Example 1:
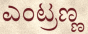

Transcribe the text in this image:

ಎಂಟ್ರಣ್ಣ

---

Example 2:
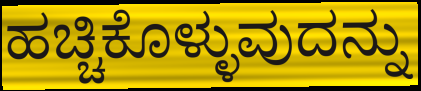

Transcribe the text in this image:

ಹಚ್ಚಿಕೊಳ್ಳುವುದನ್ನು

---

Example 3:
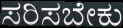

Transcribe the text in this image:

ಸರಿಸಬೇಕು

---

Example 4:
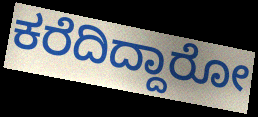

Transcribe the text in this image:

ಕರೆದಿದ್ದಾರೋ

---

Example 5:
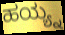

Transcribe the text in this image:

ಹಯ್ಯ್ನ